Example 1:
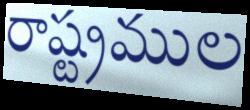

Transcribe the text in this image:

రాష్ట్రముల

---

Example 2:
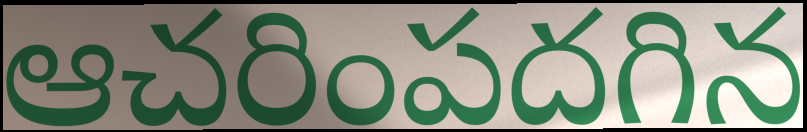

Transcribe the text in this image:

ఆచరింపదగిన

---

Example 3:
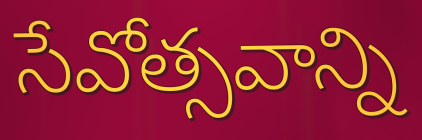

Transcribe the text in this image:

సేవోత్సవాన్ని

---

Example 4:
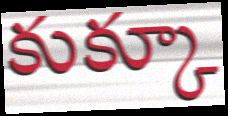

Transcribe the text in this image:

కుక్కూ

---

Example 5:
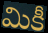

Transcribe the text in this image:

మికీ